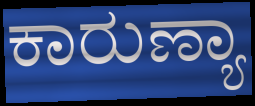
ಕಾರುಣ್ಯಾ